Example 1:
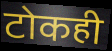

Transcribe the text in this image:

टोकही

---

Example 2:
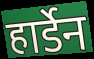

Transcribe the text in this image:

हार्डेन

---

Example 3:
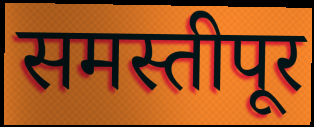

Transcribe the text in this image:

समस्तीपूर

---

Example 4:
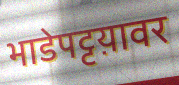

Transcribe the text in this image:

भाडेपट्टय़ावर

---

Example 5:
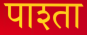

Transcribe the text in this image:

पाश्ता